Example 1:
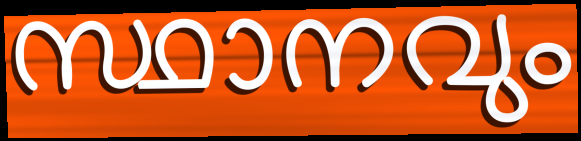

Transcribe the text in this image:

സ്ഥാനവും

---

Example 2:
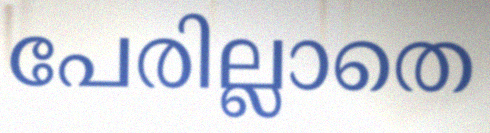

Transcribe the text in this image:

പേരില്ലാതെ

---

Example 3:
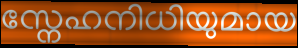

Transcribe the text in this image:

സ്നേഹനിധിയുമായ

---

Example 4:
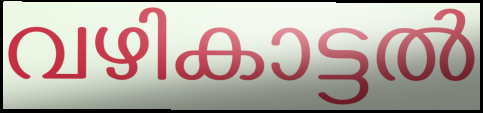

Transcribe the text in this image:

വഴികാട്ടൽ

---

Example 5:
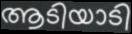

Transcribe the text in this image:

ആടിയാടി